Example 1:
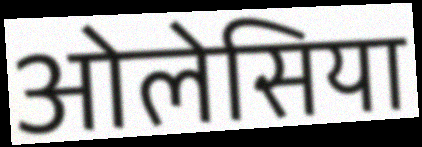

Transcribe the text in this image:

ओलेसिया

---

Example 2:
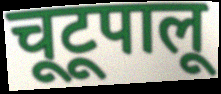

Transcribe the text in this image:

चूटूपालू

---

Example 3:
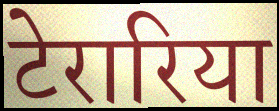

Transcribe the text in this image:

टेरारिया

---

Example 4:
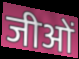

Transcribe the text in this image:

जीओं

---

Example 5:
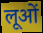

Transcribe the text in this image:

लूओं